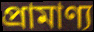
প্রামাণ্য